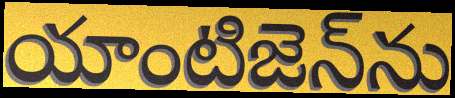
యాంటిజెన్‌ను